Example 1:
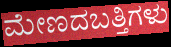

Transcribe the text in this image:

ಮೇಣದಬತ್ತಿಗಳು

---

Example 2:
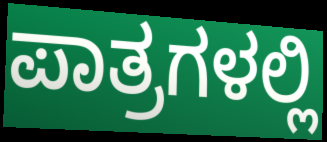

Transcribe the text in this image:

ಪಾತ್ರಗಳಲ್ಲಿ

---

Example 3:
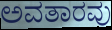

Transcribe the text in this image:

ಅವತಾರವು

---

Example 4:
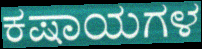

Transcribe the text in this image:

ಕಷಾಯಗಳ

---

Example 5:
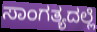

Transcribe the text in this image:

ಸಾಂಗತ್ಯದಲ್ಲೆ